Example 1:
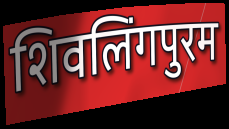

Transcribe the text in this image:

शिवलिंगपुरम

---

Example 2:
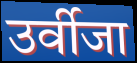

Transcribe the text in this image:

उर्वीजा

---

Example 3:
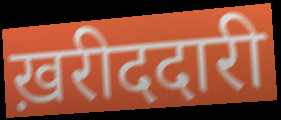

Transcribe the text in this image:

ख़रीददारी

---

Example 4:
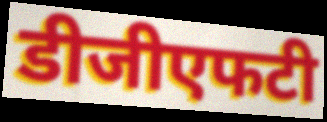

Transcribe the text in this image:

डीजीएफटी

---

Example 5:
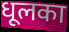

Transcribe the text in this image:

धूलका